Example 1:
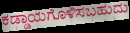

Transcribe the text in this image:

ಕಡ್ಡಾಯಗೊಳಿಸಬಹುದು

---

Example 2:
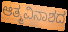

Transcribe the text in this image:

ಆತ್ಮವಿನಾಶದ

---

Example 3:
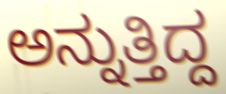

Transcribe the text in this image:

ಅನ್ನುತ್ತಿದ್ದ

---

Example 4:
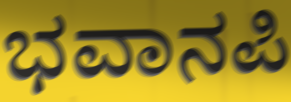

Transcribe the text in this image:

ಭವಾನಪಿ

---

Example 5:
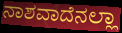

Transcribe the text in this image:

ನಾಶವಾದೆನಲ್ಲಾ